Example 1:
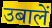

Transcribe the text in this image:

उबालें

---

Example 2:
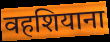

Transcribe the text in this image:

वहशियाना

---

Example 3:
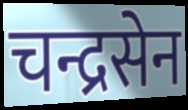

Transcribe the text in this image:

चन्द्रसेन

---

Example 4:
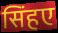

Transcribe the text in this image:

सिंहए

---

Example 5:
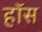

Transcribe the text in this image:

हॉस